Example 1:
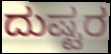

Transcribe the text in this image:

ದುಷ್ಟರ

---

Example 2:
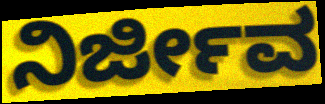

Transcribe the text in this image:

ನಿರ್ಜೀವ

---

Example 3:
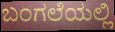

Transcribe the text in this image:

ಬಂಗಲೆಯಲ್ಲಿ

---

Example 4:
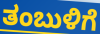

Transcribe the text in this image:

ತಂಬುಳಿಗೆ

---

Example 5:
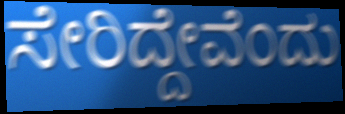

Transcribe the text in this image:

ಸೇರಿದ್ದೇವೆಂದು